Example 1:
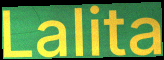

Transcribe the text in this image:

Lalita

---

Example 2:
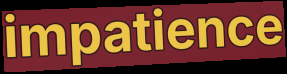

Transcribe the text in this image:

impatience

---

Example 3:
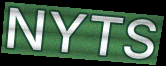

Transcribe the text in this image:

NYTS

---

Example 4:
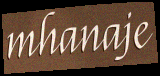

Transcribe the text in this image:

mhanaje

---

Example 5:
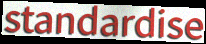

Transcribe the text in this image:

standardise